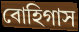
বোহিগাস